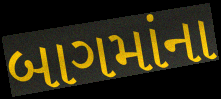
બાગમાંના